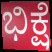
ಭಿಕ್ಷೆ